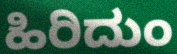
ಹಿರಿದುಂ